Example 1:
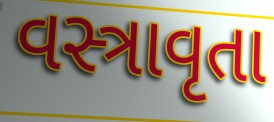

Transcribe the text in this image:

વસ્ત્રાવૃતા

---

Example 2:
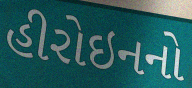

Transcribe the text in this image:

હીરોઇનનો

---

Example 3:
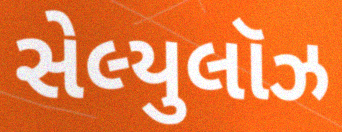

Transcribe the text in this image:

સેલ્યુલૉઝ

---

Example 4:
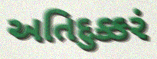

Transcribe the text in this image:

અતિદુક્કરં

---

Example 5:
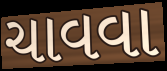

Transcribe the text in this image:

ચાવવા